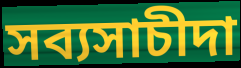
সব্যসাচীদা